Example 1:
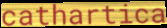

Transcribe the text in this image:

cathartica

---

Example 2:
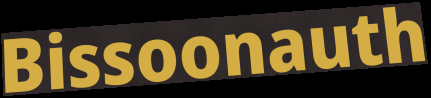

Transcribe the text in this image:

Bissoonauth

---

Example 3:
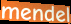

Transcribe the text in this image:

mendel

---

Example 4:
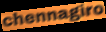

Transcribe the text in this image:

chennagiro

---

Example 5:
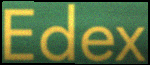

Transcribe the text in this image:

Edex